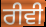
ਰੀਵੀ